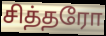
சித்தரோ